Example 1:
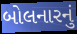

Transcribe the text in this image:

બોલનારનું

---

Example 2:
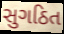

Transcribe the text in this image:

સુગઠિત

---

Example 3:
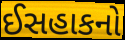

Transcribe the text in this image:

ઈસહાકનો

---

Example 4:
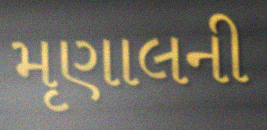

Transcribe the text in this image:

મૃણાલની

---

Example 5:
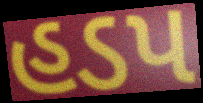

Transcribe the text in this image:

હડપ